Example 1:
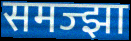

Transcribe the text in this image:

समज्झा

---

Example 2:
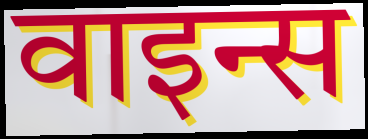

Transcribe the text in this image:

वाइन्स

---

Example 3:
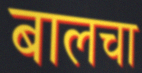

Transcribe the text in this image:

बालचा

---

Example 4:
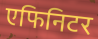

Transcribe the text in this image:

एफिनिटर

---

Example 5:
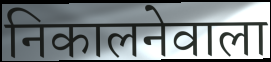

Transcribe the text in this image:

निकालनेवाला